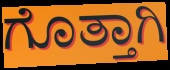
ಗೊತ್ತಾಗಿ